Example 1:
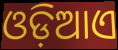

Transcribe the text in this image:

ଓଡ଼ିଆଏ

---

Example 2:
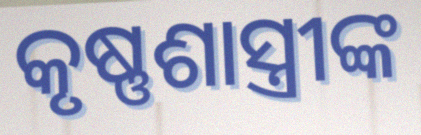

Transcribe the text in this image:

କୃଷ୍ଣଶାସ୍ତ୍ରୀଙ୍କ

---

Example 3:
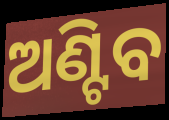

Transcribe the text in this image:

ଅଣ୍ଟିବ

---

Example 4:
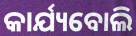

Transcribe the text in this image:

କାର୍ଯ୍ୟବୋଲି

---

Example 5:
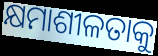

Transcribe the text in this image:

କ୍ଷମାଶୀଳତାକୁ